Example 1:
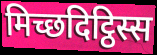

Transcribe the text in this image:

मिच्छदिट्ठिस्स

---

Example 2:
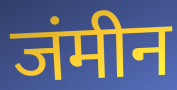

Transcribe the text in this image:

जंमीन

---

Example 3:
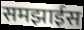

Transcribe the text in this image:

समझाईस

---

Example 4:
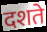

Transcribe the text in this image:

दशते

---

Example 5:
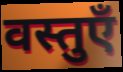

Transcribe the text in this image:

वस्तुएँ